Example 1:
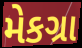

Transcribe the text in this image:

મેકગ્રા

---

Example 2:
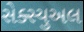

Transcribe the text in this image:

સેક્સ્યુઅલ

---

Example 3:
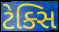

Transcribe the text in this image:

ટેક્સિ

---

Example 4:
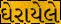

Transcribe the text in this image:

ઘેરાયેલે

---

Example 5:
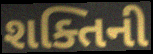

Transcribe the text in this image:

શક્તિની